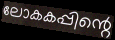
ലോകകപ്പിന്റെ